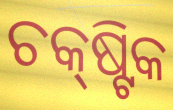
ଚକ୍‌ଷ୍ଟିକ